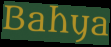
Bahya